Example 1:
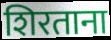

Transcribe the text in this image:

शिरताना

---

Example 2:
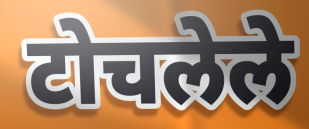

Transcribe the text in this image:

टोचलेले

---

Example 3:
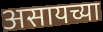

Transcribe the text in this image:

असायच्या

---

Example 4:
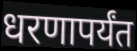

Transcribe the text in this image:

धरणापर्यंत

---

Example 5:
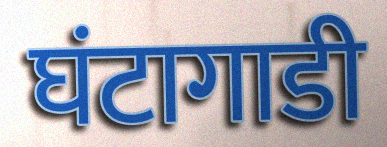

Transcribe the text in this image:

घंटागाडी